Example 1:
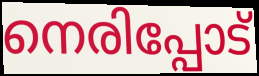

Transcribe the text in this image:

നെരിപ്പോട്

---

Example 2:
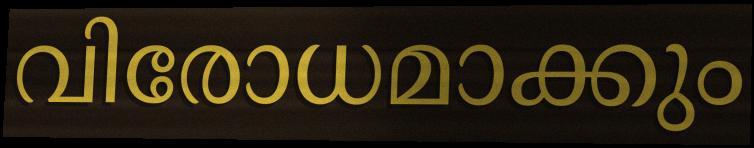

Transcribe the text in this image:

വിരോധമാക്കും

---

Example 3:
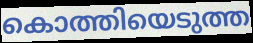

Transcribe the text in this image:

കൊത്തിയെടുത്ത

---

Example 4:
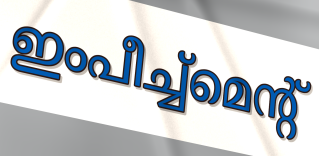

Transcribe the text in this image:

ഇംപീച്ച്മെന്റ്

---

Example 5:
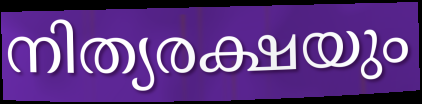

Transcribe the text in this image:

നിത്യരക്ഷയും